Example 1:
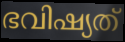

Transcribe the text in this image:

ഭവിഷ്യത്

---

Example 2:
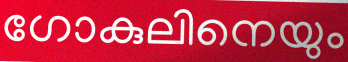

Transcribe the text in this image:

ഗോകുലിനെയും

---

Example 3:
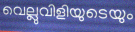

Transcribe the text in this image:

വെല്ലുവിളിയുടെയും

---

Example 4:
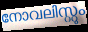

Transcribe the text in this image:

നോവലിസ്റ്റും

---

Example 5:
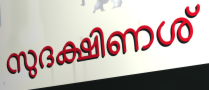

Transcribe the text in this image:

സുദക്ഷിണശ്